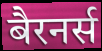
बैरनर्स